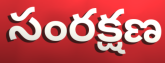
సంరక్షణ